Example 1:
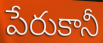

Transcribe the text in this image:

పేరుకానీ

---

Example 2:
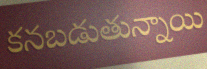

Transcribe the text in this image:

కనబడుతున్నాయి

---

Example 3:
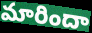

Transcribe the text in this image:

మారిందా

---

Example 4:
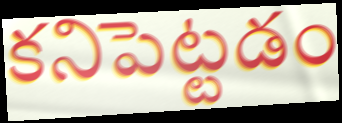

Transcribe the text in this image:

కనిపెట్టడం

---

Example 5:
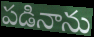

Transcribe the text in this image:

పడినాను